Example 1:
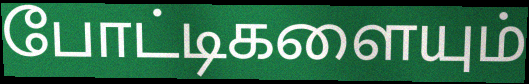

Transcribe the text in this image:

போட்டிகளையும்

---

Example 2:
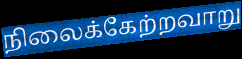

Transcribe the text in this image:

நிலைக்கேற்றவாறு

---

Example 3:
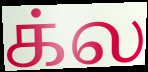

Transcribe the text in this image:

க்ல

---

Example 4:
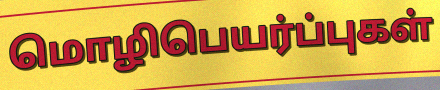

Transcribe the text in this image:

மொழிபெயர்ப்புகள்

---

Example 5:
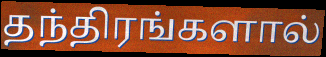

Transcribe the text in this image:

தந்திரங்களால்